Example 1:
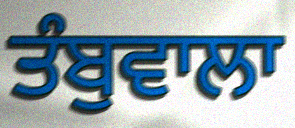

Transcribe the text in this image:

ਤੰਬੁਵਾਲਾ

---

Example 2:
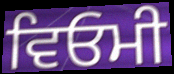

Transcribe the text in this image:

ਵਿਓਮੀ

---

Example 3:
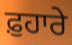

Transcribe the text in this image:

ਫ਼ੁਹਾਰੇ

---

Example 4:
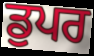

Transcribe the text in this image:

ਡੁਪਰ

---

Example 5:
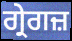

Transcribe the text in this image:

ਗ੍ਰੇਗਜ਼